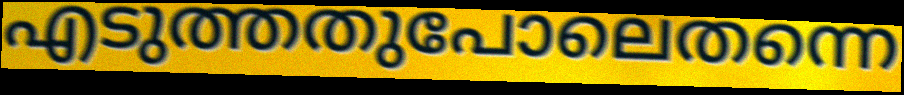
എടുത്തതുപോലെതന്നെ